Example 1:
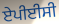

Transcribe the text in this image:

ਏਪੀਈਸੀ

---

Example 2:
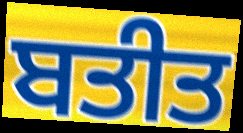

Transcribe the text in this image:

ਬਤੀਤ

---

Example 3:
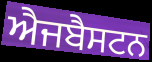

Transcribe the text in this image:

ਐਜਬੈਸਟਨ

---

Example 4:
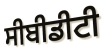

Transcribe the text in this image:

ਸੀਬੀਡੀਟੀ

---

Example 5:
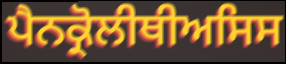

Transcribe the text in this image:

ਪੈਨਕ੍ਰੋਲੀਥੀਅਸਿਸ